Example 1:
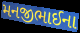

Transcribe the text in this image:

મનજીભાઈના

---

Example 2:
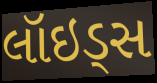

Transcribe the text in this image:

લૉઇડ્સ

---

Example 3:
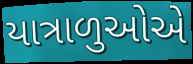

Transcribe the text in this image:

યાત્રાળુઓએ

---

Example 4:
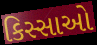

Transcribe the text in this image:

કિસ્સાઓ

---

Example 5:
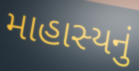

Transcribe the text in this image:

માહાસ્યનું